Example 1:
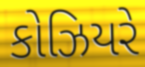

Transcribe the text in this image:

કોઝિયરે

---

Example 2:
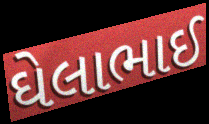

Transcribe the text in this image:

ઘેલાભાઈ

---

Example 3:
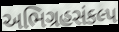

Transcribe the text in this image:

અભિગ્રહસંકલ્પ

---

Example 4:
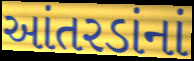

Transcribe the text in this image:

આંતરડાંનાં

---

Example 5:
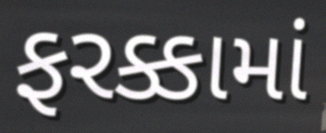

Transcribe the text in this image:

ફરક્કામાં